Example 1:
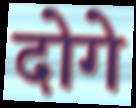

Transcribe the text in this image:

दोगे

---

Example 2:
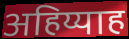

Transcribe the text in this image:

अहिय्याह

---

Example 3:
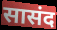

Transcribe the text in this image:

सासंद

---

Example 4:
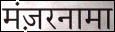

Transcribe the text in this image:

मंज़रनामा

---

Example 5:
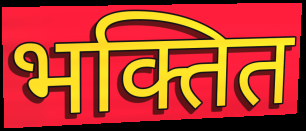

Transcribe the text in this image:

भक्तित